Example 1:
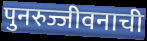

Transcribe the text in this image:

पुनरुज्जीवनाची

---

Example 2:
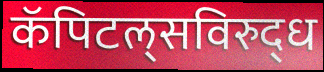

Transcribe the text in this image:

कॅपिटल्सविरुद्ध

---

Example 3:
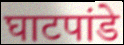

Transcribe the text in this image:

घाटपांडे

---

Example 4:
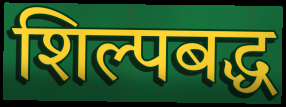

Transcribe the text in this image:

शिल्पबद्ध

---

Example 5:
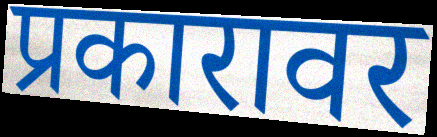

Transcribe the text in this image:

प्रकारावर